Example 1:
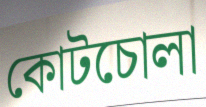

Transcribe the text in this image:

কোটচোলা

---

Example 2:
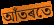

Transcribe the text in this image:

আঁতৰতে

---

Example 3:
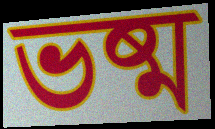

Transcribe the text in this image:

ভষ্ম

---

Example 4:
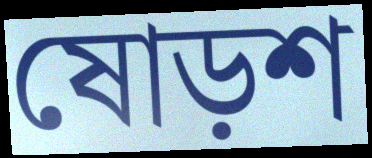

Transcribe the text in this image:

ষোড়শ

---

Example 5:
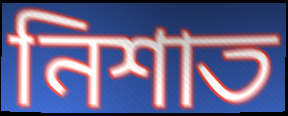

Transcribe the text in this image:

নিশাত